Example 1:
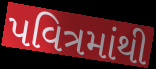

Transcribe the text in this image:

પવિત્રમાંથી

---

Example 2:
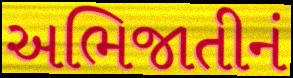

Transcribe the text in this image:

અભિજાતીનં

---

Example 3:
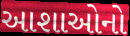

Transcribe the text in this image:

આશાઓનો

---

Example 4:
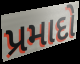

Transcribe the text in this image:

પ્રમાદો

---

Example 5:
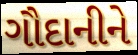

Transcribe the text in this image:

ગૌદાનીને